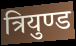
त्रियुण्ड